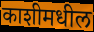
काशीमधील